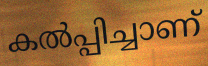
കൽപ്പിച്ചാണ്